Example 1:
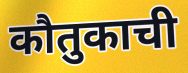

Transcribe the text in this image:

कौतुकाची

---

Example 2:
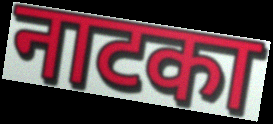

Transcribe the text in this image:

नाटका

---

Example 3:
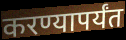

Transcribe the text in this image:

करण्यापर्यंत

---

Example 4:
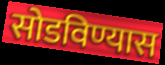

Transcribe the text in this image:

सोडविण्यास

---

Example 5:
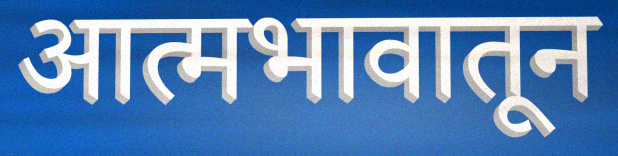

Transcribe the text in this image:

आत्मभावातून